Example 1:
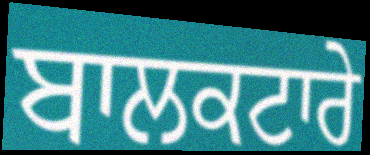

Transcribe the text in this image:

ਬਾਲਕਟਾਰੇ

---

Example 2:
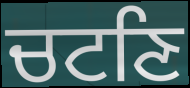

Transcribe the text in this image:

ਚਟਣਿ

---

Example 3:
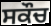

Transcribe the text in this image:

ਸਕੌਚ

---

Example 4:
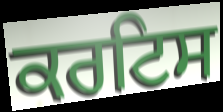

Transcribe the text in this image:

ਕਰਟਿਸ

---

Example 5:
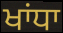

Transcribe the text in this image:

ਖਾਂਧਾ